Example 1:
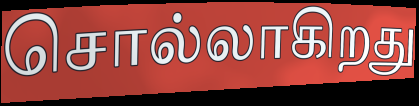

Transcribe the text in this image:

சொல்லாகிறது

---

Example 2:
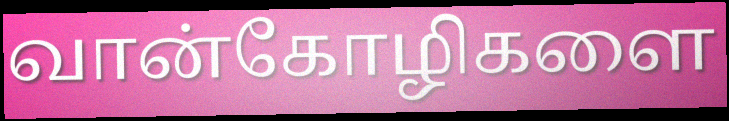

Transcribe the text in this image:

வான்கோழிகளை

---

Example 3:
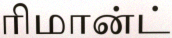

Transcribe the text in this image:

ரிமான்ட்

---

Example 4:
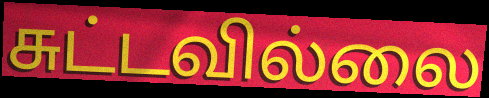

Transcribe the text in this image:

சுட்டவில்லை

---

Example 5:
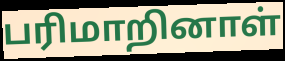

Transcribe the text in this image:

பரிமாறினாள்